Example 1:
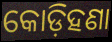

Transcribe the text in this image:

କୋଡ଼ିହଣା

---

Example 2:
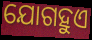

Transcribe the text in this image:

ଯୋଗହୁଏ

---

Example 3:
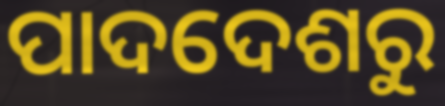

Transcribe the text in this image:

ପାଦଦେଶରୁ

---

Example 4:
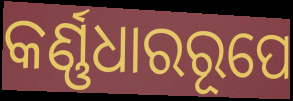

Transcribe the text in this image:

କର୍ଣ୍ଣଧାରରୂପେ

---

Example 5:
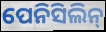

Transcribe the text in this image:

ପେନିସିଲିନ୍